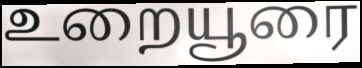
உறையூரை